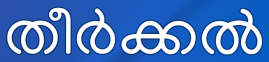
തീർക്കൽ